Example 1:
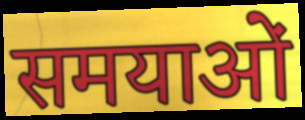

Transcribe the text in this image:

समयाओं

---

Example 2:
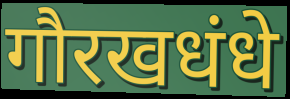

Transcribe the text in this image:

गौरखधंधे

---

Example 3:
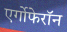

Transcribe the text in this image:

एर्गोफेरॉन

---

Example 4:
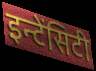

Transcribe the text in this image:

इन्टेंसिटी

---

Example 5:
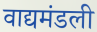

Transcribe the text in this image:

वाद्यमंडली